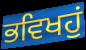
ਭਵਿਖਹੁਂ